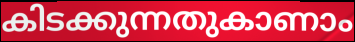
കിടക്കുന്നതുകാണാം